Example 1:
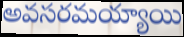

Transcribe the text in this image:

అవసరమయ్యాయి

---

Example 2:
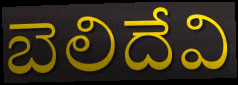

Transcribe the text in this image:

బెలిదేవి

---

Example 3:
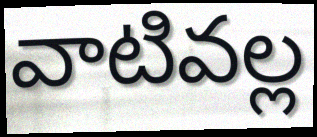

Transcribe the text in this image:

వాటివల్ల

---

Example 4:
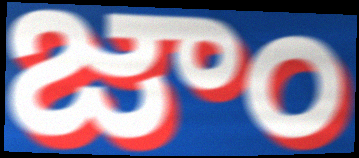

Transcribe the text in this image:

జాం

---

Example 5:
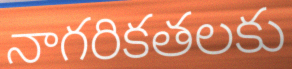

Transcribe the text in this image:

నాగరికతలకు